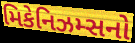
મિકેનિઝમ્સનો